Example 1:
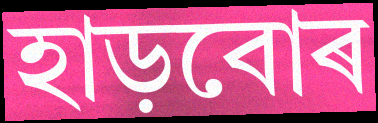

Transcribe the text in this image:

হাড়বোৰ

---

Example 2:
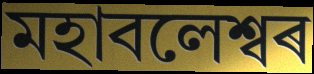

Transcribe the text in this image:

মহাবলেশ্বৰ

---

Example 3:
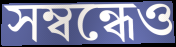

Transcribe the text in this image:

সম্বন্ধেও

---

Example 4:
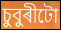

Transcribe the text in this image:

চুবুৰীটো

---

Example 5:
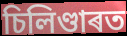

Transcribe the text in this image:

চিলিণ্ডাৰত